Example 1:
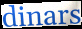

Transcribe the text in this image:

dinars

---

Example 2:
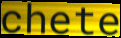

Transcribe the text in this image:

chete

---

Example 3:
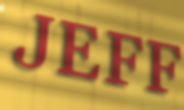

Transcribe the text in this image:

JEFF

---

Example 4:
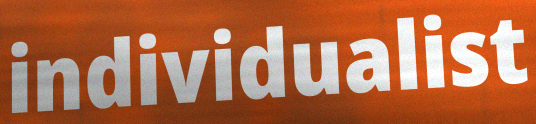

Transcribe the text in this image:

individualist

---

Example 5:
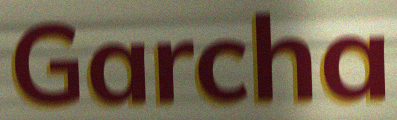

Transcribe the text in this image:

Garcha